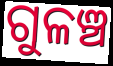
ଗୁଳଞ୍ଚ